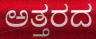
ಅತ್ತರದ